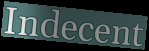
Indecent